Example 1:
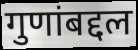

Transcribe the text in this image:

गुणांबद्दल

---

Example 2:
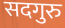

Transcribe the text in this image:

सदगुरु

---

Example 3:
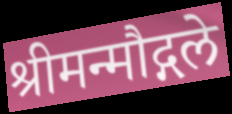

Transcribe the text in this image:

श्रीमन्मौद्गले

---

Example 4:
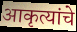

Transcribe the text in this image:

आकृत्यांचे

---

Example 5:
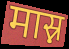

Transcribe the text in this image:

मास्न